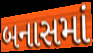
બનાસમાં